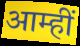
आम्हीं